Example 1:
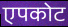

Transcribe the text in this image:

एपकोट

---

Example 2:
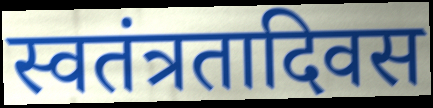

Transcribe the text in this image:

स्वतंत्रतादिवस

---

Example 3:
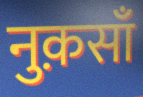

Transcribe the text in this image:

नुक़साँ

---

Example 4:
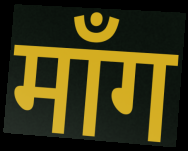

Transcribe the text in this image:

माँग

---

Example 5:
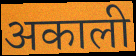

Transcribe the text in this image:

अकाली